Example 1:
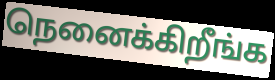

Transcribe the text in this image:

நெனைக்கிறீங்க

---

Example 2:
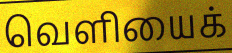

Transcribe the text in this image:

வெளியைக்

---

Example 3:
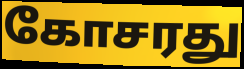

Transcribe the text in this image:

கோசரது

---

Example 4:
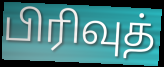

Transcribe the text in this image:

பிரிவுத்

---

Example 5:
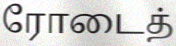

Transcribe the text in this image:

ரோடைத்